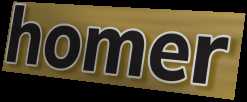
homer